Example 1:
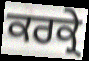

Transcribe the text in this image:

ਕਰਕ੍ਰੇ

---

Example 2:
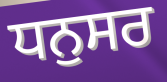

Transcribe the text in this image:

ਧਨੁਸਰ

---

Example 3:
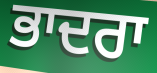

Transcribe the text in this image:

ਭਾਦਰਾ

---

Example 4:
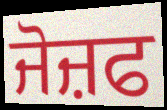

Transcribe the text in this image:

ਜੋਜ਼ਫ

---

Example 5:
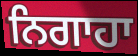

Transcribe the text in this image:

ਨਿਗਾਹਾ